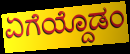
ಏಗೆಯ್ದೊಡಂ